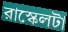
রাস্কেলটা